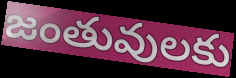
జంతువులకు